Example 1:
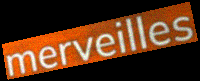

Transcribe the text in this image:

merveilles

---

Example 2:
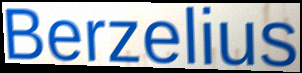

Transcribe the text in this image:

Berzelius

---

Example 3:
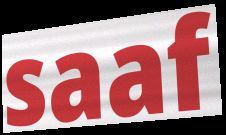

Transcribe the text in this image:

saaf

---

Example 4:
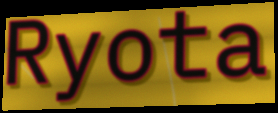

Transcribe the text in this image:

Ryota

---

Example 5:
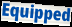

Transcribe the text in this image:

Equipped